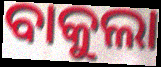
ବାକୁଲା